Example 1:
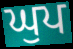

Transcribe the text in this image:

ਘੁਪ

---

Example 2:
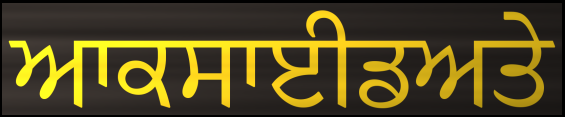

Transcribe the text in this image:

ਆਕਸਾਈਡਅਤੇ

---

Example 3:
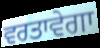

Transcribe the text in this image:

ਵਰਤਾਵੇਗਾ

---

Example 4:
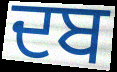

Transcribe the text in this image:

ਦਬ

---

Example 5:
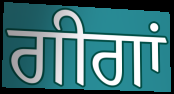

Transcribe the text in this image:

ਗੀਗਾਂ